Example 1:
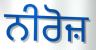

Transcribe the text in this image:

ਨੀਰੋਜ਼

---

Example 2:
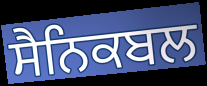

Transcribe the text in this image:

ਸੈਨਿਕਬਲ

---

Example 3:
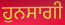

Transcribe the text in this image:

ਹੁਨਸਾਗੀ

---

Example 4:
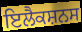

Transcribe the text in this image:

ਇਲੈਕਸ਼ਨਸ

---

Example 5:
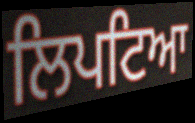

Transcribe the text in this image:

ਲਿਪਟਿਆ